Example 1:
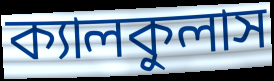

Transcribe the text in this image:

ক্যালকুলাস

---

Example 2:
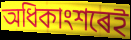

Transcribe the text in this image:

অধিকাংশৰেই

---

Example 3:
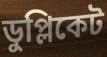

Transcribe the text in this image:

ডুপ্লিকেট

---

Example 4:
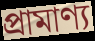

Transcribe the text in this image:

প্ৰামাণ্য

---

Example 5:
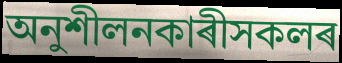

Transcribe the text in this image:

অনুশীলনকাৰীসকলৰ